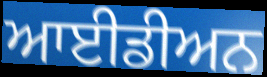
ਆਈਡੀਅਨ